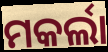
ମକର୍ଲା